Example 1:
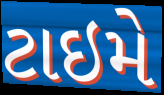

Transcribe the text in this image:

ટાઇમે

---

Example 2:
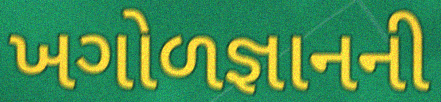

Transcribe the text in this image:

ખગોળજ્ઞાનની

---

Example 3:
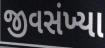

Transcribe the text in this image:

જીવસંખ્યા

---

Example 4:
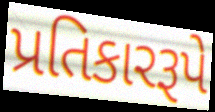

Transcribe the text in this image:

પ્રતિકારરૂપે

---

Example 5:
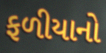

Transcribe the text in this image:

ફળીયાનો